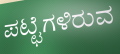
ಪಟ್ಟೆಗಳಿರುವ